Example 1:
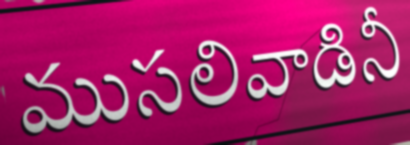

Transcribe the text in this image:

ముసలివాడినీ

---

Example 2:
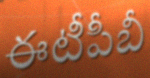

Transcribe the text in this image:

ఈటీపీబీ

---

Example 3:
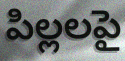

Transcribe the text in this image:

పిల్లలపై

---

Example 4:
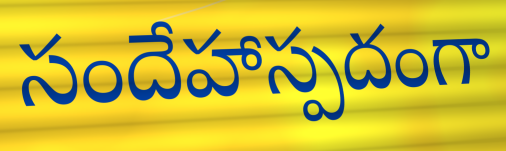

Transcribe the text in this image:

సందేహాస్పదంగా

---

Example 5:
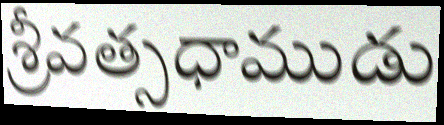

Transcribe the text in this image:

శ్రీవత్సధాముడు